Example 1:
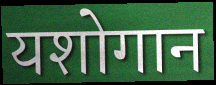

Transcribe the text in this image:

यशोगान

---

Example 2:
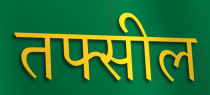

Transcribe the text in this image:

तफ्सील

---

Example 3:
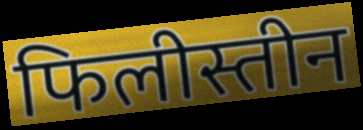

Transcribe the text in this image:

फिलीस्तीन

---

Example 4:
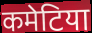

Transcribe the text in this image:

कमेटिया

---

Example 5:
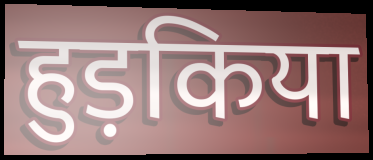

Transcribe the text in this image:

हुड़किया